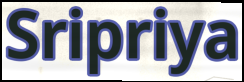
Sripriya